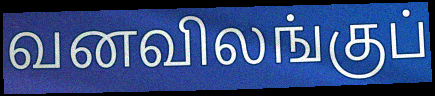
வனவிலங்குப்